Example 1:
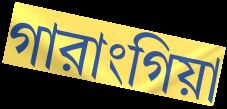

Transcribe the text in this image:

গারাংগিয়া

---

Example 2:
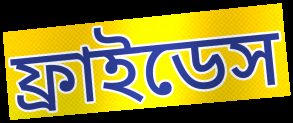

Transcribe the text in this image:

ফ্রাইডেস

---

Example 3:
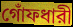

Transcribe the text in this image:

গোঁফধারী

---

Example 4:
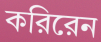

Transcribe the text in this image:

করিরেন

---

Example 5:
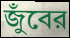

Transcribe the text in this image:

জুঁবের